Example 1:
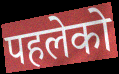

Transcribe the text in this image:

पहलेको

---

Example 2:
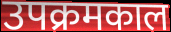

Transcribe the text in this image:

उपक्रमकाल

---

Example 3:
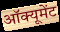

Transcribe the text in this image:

ऑक्यूमेंट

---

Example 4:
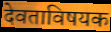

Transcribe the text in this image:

देवताविषयक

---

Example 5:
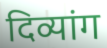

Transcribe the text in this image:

दिव्यांग